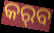
କର୍‌ବ